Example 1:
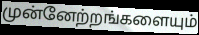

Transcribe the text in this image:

முன்னேற்றங்களையும்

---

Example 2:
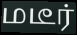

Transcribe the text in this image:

மடீர்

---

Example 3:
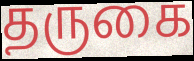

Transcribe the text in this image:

தருகை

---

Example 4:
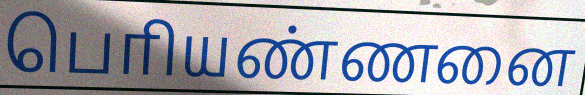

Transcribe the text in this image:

பெரியண்ணனை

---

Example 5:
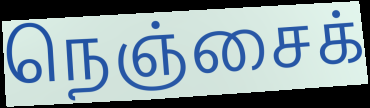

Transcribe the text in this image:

நெஞ்சைக்